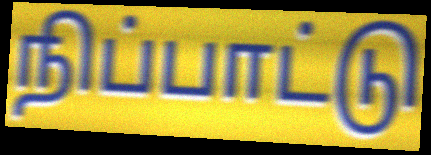
நிப்பாட்டு